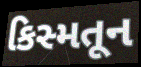
કિસ્મતૂન